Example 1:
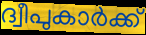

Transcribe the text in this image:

ദ്വീപുകാർക്ക്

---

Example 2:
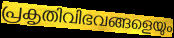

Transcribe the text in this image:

പ്രകൃതിവിഭവങ്ങളെയും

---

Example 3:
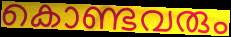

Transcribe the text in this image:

കൊണ്ടവരും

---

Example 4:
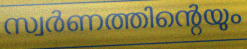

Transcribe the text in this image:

സ്വർണത്തിന്റെയും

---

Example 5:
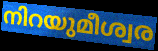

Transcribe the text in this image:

നിറയുമീശ്വര